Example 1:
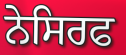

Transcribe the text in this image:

ਨੇਸਿਰਫ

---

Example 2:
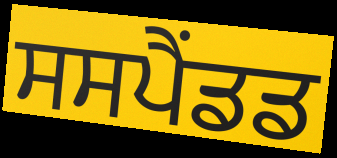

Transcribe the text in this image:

ਸਸਪੈਂਡਡ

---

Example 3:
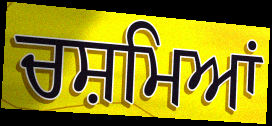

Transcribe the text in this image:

ਚਸ਼ਮਿਆਂ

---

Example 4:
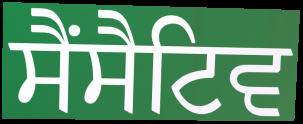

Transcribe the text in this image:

ਸੈਂਸੈਟਿਵ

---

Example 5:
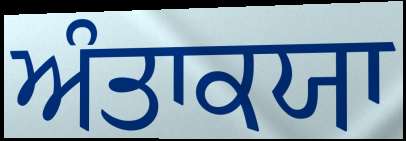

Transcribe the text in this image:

ਅੰਤਾਕਯਾ